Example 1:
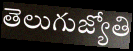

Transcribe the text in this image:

తెలుగుజ్యోతి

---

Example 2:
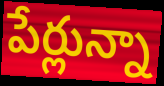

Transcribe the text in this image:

పేర్లున్నా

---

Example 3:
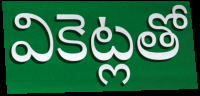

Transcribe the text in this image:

వికెట్లతో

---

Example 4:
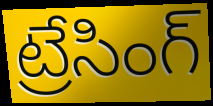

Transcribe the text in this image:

ట్రేసింగ్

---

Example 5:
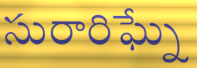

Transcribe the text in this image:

సురారిఘ్నే